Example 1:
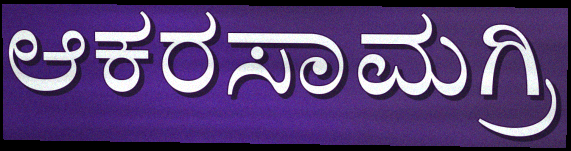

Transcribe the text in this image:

ಆಕರಸಾಮಗ್ರಿ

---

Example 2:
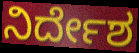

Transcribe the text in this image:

ನಿರ್ದೇಶ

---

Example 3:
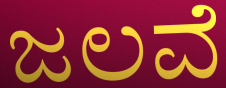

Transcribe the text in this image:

ಜಲವೆ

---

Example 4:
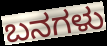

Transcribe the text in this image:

ಬನಗಳು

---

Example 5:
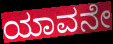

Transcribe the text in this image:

ಯಾವನೇ